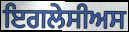
ਇਗਲੇਸੀਅਸ